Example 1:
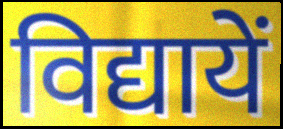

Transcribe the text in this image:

विद्यायें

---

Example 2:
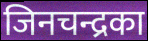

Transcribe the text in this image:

जिनचन्द्रका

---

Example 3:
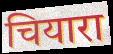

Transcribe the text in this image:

चियारा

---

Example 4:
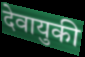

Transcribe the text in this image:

देवायुकी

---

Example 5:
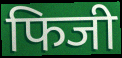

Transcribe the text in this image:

फिजी